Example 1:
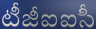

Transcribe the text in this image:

టీజీఐఐసీ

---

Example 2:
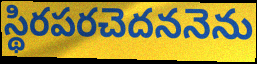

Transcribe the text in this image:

స్థిరపరచెదననెను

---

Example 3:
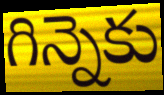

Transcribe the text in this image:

గిన్నెకు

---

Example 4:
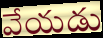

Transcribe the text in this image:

వేయడు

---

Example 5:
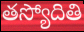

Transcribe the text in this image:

తస్యోదితి